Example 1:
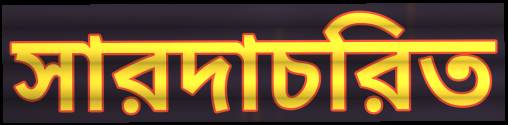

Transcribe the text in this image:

সারদাচরিত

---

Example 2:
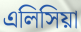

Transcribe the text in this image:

এলিসিয়া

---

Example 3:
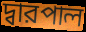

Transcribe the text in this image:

দ্বারপাল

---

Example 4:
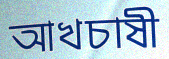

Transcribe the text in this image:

আখচাষী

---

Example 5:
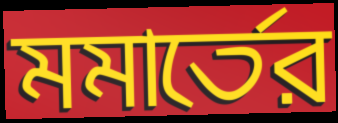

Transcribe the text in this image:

মমার্তের